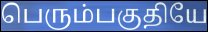
பெரும்பகுதியே